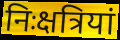
निःक्षत्रियां